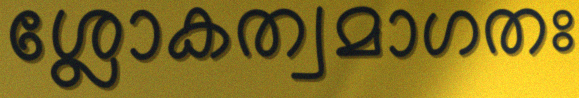
ശ്ലോകത്വമാഗതഃ